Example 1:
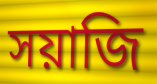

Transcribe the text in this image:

সয়াজি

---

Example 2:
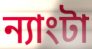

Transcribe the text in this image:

ন্যাংটা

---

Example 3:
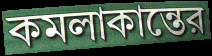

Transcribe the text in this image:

কমলাকান্তের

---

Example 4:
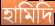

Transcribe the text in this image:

হামিদি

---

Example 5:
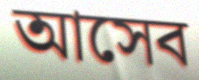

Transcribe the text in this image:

আসেব